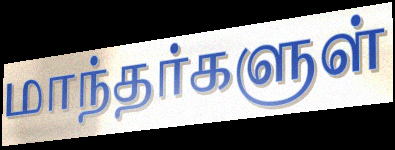
மாந்தர்களுள்